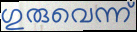
ഗുരുവെന്ന്